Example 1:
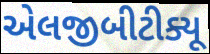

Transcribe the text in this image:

એલજીબીટીક્યૂ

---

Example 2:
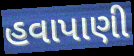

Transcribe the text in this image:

હવાપાણી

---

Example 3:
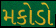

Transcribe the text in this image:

મકોડો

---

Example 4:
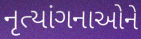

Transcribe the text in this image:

નૃત્યાંગનાઓને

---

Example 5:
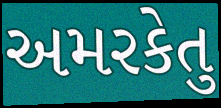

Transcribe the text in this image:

અમરકેતુ